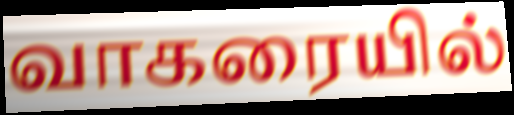
வாகரையில்